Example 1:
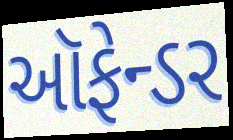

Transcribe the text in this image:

ઑફેન્ડર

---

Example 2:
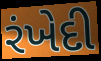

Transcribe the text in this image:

રંખેદી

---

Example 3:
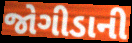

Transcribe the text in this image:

જોગીડાની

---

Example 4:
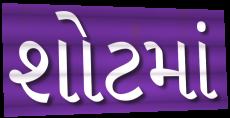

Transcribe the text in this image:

શોટમાં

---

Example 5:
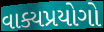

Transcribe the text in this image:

વાક્યપ્રયોગો